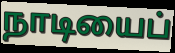
நாடியைப்